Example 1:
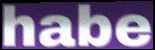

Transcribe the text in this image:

habe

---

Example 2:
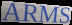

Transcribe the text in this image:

ARMS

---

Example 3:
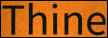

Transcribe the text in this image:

Thine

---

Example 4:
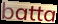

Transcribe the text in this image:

batta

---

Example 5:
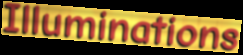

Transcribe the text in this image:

Illuminations